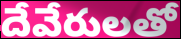
దేవేరులతో